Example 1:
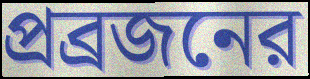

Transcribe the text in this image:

প্রব্রজনের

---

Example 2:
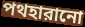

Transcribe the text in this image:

পথহারানো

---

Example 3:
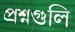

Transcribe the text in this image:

প্রশ্নগুলি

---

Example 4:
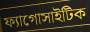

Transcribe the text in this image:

ফ্যাগোসাইটিক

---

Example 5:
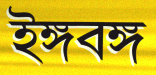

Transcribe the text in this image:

ইঙ্গবঙ্গ